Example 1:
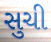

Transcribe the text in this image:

સુચી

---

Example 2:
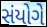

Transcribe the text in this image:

સંયોગે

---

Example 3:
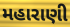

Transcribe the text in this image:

મહારાણી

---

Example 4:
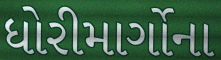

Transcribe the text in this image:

ધોરીમાર્ગોના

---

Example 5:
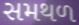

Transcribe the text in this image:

સમથળ